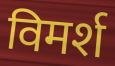
विमर्श